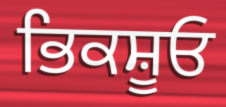
ਭਿਕਸ਼ੂਓ